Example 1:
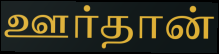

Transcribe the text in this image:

ஊர்தான்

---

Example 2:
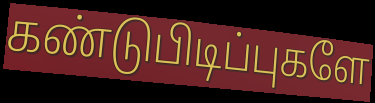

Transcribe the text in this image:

கண்டுபிடிப்புகளே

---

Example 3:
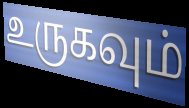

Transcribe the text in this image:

உருகவும்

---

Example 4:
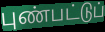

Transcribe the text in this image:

புண்பட்டுப்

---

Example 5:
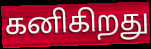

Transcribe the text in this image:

கனிகிறது